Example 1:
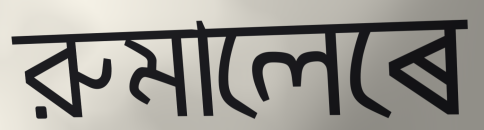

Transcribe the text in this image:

ৰুমালেৰে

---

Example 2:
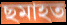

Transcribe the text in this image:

ছমাহত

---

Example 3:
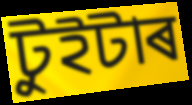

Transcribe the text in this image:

টুইটাৰ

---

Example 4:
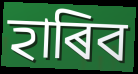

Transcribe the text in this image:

হাৰিব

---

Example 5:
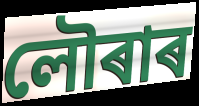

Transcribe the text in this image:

লৌৰাৰ